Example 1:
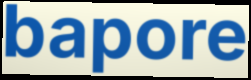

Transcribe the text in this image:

bapore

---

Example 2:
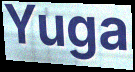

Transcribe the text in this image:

Yuga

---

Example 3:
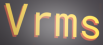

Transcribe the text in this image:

Vrms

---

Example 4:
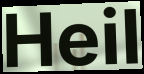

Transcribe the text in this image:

Heil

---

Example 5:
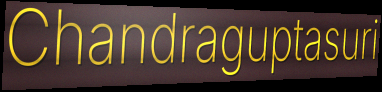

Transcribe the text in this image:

Chandraguptasuri